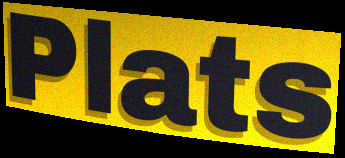
Plats